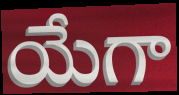
యేగా